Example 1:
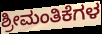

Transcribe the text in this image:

ಶ್ರೀಮಂತಿಕೆಗಳ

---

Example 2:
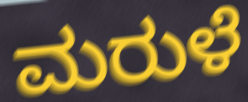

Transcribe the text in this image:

ಮರುಳೆ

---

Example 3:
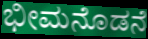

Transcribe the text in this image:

ಭೀಮನೊಡನೆ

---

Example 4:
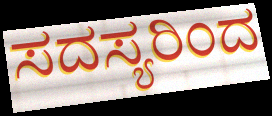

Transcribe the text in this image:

ಸದಸ್ಯರಿಂದ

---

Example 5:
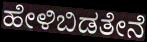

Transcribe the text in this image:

ಹೇಳಿಬಿಡತೇನೆ